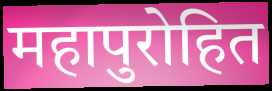
महापुरोहित